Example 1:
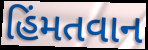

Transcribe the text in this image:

હિંમતવાન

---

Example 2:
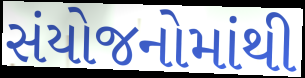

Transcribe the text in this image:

સંયોજનોમાંથી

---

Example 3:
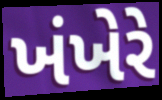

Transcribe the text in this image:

ખંખેરે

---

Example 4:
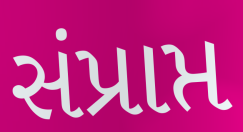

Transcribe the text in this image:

સંપ્રાપ્ત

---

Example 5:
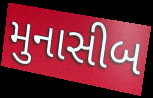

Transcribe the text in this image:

મુનાસીબ